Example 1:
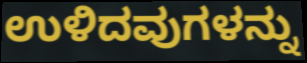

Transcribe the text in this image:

ಉಳಿದವುಗಳನ್ನು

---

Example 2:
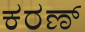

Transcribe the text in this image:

ಕರಣ್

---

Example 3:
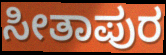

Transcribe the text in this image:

ಸೀತಾಪುರ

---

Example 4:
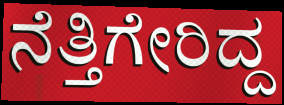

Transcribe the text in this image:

ನೆತ್ತಿಗೇರಿದ್ದ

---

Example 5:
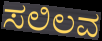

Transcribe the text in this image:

ಸಲಿಲವ